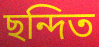
ছন্দিত